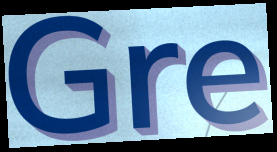
Gre